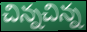
చిన్నచిన్న